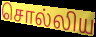
சொல்லிய